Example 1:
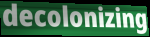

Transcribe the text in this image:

decolonizing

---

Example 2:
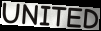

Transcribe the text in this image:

UNITED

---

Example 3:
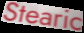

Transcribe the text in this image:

Stearic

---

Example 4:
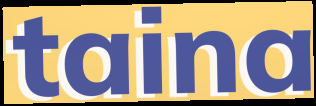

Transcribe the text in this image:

taina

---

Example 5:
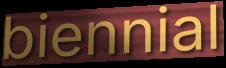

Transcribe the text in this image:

biennial